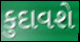
કુદાવશે